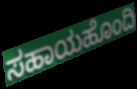
ಸಹಾಯಹೊಂದಿ